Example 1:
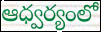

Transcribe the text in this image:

ఆధ్వర్యంలో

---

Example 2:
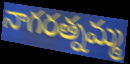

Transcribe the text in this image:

నాగరత్నమ్మ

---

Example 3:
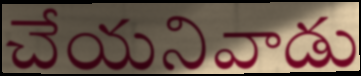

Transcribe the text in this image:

చేయనివాడు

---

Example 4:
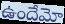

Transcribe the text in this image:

ఉందేమో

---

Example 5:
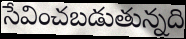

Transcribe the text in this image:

సేవించబడుతున్నది